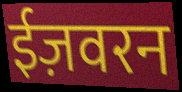
ईज़वरन